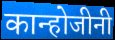
कान्होजीनी